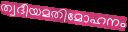
ത്വദീയമതിമോഹനം